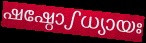
ഷഷ്ഠോഽധ്യായഃ